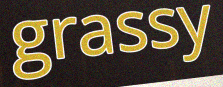
grassy